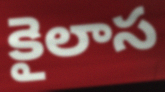
కైలాస